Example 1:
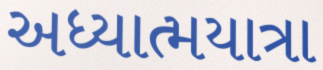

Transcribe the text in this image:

અધ્યાત્મયાત્રા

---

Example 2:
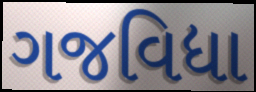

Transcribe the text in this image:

ગજવિદ્યા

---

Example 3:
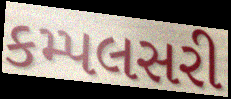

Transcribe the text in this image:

કમ્પલસરી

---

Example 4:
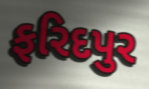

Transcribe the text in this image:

ફરિદપુર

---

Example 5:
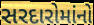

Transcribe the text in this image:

સરદારોમાંનો